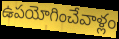
ఉపయోగించేవాళ్లం